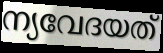
ന്യവേദയത്